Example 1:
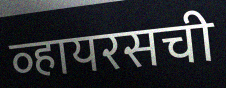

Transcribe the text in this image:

व्हायरसची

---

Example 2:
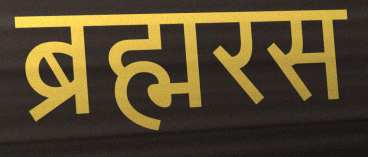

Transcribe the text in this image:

ब्रह्मरस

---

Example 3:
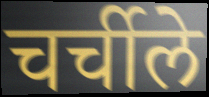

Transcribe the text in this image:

चर्चीले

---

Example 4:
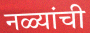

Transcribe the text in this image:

नळ्यांची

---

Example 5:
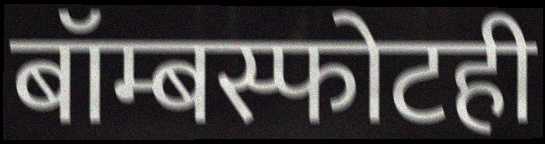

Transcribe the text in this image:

बॉम्बस्फोटही